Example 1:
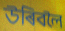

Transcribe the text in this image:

উৰিবলৈ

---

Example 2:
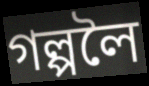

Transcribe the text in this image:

গল্পলৈ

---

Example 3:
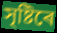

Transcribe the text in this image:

সৃষ্টিৰে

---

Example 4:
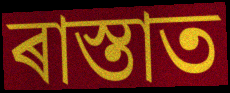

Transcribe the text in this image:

ৰাস্তাত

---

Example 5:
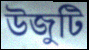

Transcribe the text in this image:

উজুটি